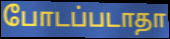
போடப்படாதா